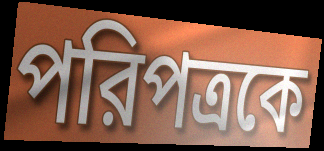
পরিপত্রকে